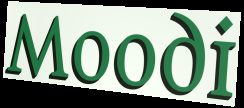
Moodi